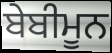
ਬੇਬੀਮੂਨ